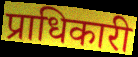
प्राधिकारी